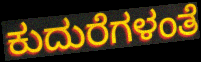
ಕುದುರೆಗಳಂತೆ